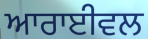
ਆਰਾਈਵਲ